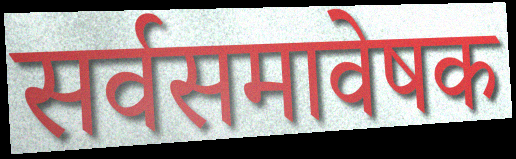
सर्वसमावेषक